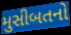
મુસીબતનો